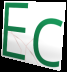
Ec